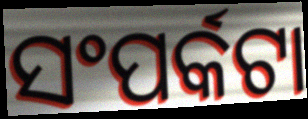
ସଂପର୍କଟା